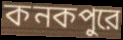
কনকপুরে